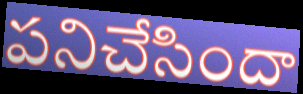
పనిచేసిందా